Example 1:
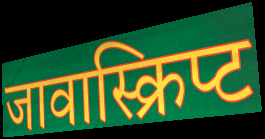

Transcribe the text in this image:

जावास्क्रिप्ट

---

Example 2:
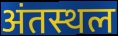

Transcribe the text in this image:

अंतस्थल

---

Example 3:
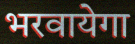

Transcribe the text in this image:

भरवायेगा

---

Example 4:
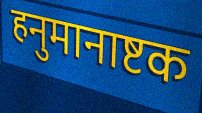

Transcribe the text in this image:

हनुमानाष्टक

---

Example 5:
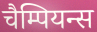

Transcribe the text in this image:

चैम्पियन्स